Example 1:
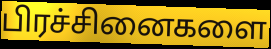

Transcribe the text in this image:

பிரச்சினைகளை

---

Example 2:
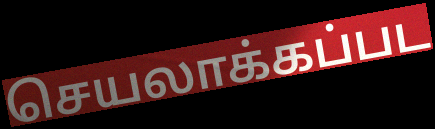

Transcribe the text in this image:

செயலாக்கப்பட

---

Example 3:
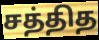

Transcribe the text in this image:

சத்தித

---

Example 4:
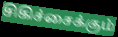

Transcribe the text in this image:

சிகிச்சைக்கும்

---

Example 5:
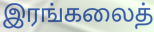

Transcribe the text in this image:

இரங்கலைத்